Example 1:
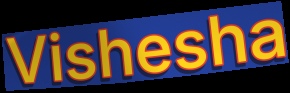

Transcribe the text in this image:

Vishesha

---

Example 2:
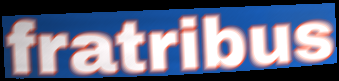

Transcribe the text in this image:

fratribus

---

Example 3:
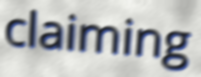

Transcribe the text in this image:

claiming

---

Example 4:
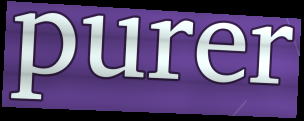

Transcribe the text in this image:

purer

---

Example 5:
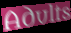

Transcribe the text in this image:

Adults